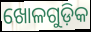
ଖୋଳଗୁଡ଼ିକ